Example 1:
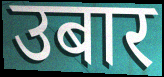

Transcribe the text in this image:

उबार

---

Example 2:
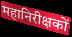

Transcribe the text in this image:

महानिरीक्षकों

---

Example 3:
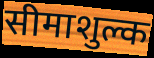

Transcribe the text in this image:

सीमाशुल्क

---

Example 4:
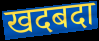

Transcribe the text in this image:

खदबदा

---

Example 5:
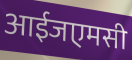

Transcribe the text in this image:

आईजएमसी